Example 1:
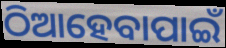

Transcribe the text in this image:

ଠିଆହେବାପାଇଁ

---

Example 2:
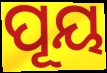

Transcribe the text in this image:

ପୂୟ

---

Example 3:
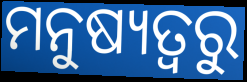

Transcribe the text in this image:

ମନୁଷ୍ୟତ୍ୱରୁ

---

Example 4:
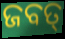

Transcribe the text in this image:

ଜବତ୍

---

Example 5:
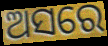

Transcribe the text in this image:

ଅସରେ